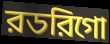
রডরিগো